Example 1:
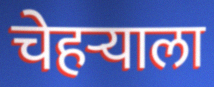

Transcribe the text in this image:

चेहऱ्याला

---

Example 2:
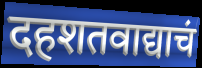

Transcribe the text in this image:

दहशतवाद्याचं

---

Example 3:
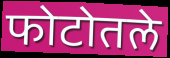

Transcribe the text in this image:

फोटोतले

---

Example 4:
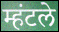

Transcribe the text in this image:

म्हंटले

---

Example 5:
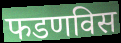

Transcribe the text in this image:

फडणविस